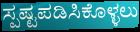
ಸ್ಪಷ್ಟಪಡಿಸಿಕೊಳ್ಳಲು